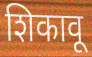
शिकावू